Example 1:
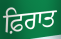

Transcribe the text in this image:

ਫ਼ਿਰਾਤ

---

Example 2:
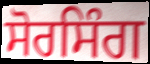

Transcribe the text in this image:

ਸੋਰਸਿੰਗ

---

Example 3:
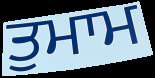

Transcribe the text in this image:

ਤੁਮਾਮ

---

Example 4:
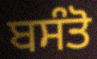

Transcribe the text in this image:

ਬਸੰਤੋ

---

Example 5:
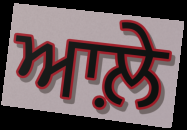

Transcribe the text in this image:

ਆਲ਼ੇ